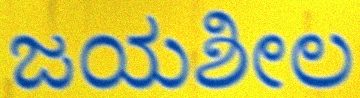
ಜಯಶೀಲ